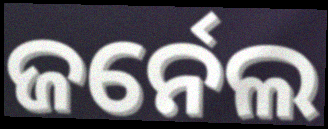
ଜର୍ନେଲ